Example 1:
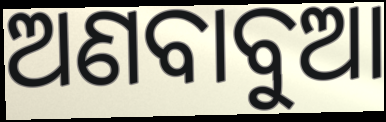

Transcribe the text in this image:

ଅଣବାବୁଆ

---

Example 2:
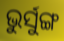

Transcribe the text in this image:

ଭୁର୍ସୁଙ୍ଗ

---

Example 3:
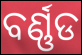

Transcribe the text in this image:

ବର୍ଣ୍ଣଡ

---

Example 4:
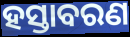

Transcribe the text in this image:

ହସ୍ତାବରଣ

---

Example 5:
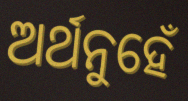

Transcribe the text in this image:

ଅର୍ଥନୁହେଁ